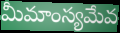
మీమాంస్యమేవ